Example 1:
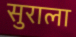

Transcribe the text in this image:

सुराला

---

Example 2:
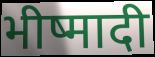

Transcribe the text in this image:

भीष्मादी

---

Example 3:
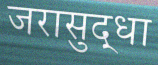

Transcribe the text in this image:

जरासुद्धा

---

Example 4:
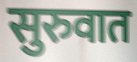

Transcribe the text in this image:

सुरुवात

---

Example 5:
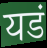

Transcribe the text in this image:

यडं